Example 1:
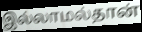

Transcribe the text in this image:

இல்லாமல்தான்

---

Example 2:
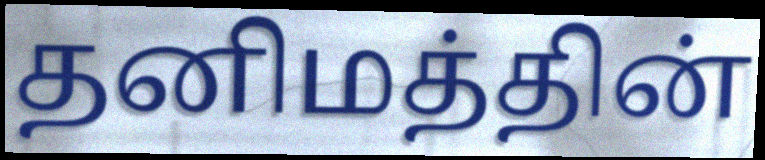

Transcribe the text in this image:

தனிமத்தின்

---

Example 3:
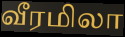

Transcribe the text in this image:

வீரமிலா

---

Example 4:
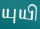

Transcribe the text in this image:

யுயி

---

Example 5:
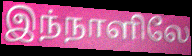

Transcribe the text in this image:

இந்நாளிலே